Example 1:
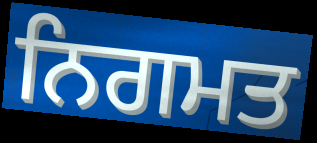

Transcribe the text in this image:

ਨਿਗਮਤ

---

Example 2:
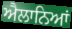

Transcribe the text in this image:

ਐਲਾਨਿਆਂ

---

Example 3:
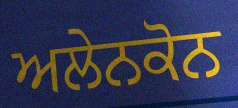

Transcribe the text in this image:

ਅਲੇਨਕੋਨ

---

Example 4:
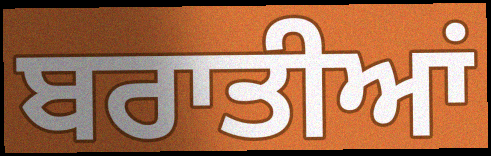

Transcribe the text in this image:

ਬਰਾਤੀਆਂ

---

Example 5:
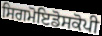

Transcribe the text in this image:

ਸਿਗਮੋਇਡੋਸਕੋਪੀ